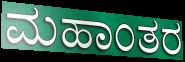
ಮಹಾಂತರ